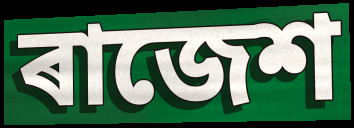
ৰাজেশ